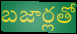
బజార్లతో